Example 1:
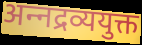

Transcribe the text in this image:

अन्नद्रव्ययुक्त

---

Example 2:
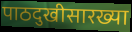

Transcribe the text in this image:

पाठदुखीसारख्या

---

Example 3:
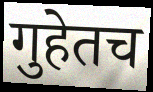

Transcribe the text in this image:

गुहेतच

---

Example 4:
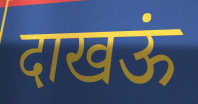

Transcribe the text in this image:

दाखऊं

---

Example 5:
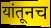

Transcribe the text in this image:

यांतूनच